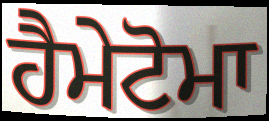
ਹੈਮੇਟੋਮਾ